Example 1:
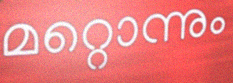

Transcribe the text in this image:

മറ്റൊന്നും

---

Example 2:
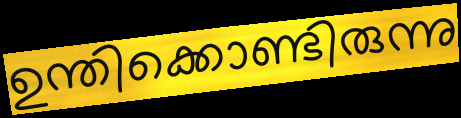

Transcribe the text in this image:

ഉന്തിക്കൊണ്ടിരുന്നു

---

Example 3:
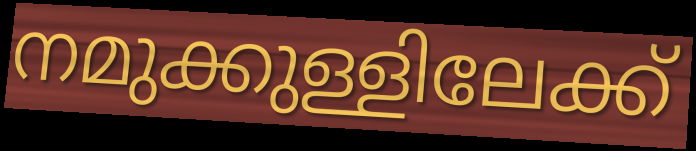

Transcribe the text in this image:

നമുക്കുള്ളിലേക്ക്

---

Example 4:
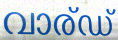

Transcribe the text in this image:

വാര്ഡ്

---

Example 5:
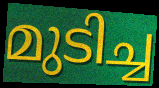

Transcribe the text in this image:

മുടിച്ച